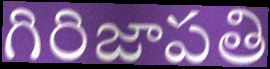
గిరిజాపతి